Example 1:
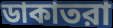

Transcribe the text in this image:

ডাকাতরা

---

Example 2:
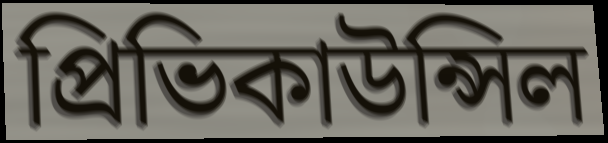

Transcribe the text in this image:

প্রিভিকাউন্সিল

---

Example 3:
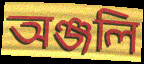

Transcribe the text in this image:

অঞ্জলি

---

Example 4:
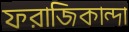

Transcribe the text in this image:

ফরাজিকান্দা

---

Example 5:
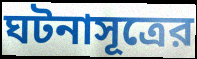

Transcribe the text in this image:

ঘটনাসূত্রের